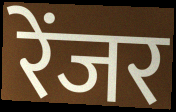
रेंजर